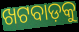
ଖଟବାଡ଼କୁ